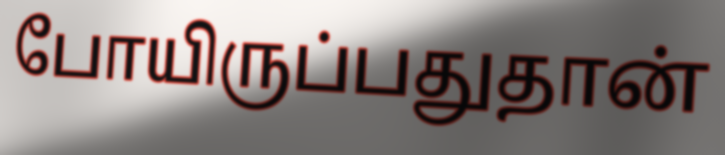
போயிருப்பதுதான்